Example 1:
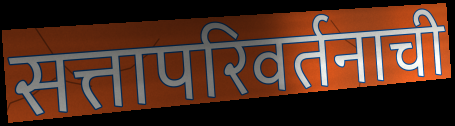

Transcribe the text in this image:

सत्तापरिवर्तनाची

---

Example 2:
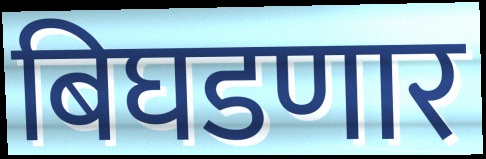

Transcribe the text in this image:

बिघडणार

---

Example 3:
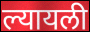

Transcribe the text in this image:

ल्यायली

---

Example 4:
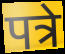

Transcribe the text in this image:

पत्रे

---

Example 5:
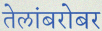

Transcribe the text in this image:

तेलांबरोबर